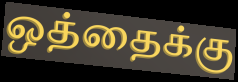
ஒத்தைக்கு